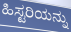
ಹಿಸ್ಟರಿಯನ್ನು